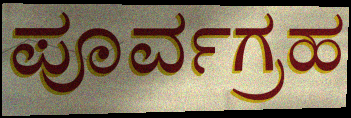
ಪೂರ್ವಗ್ರಹ